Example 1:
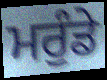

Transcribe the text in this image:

ਮਰੁੰਡੇ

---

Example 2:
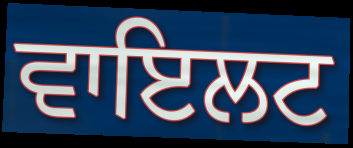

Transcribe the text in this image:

ਵਾਇਲਟ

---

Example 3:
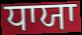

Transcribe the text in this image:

ਧਾਯਾ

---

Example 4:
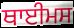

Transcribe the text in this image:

ਥਾਈਮਸ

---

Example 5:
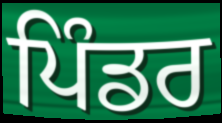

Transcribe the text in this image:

ਪਿੰਡਰ